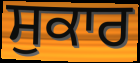
ਸੁਕਾਰ